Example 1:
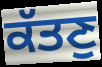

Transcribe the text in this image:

ਕੱਤਣੁ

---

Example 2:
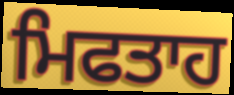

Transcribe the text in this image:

ਮਿਫਤਾਹ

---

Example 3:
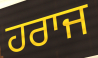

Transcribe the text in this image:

ਹਰਾਜ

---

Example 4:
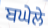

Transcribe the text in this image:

ਬਘੇਲੇ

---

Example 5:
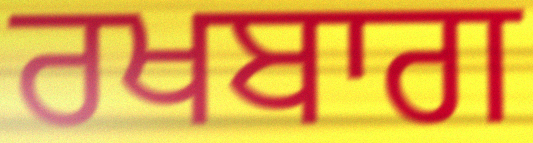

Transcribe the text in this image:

ਰਖਬਾਗ